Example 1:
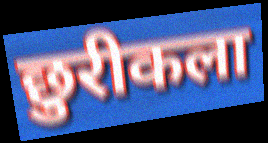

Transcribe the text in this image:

छुरीकला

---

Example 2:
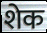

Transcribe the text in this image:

शेक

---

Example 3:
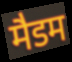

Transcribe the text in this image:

मैडम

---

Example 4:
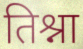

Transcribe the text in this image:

तिश्ना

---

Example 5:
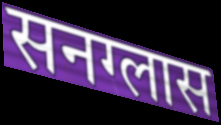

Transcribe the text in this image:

सनग्लास